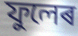
ফুলেৰ